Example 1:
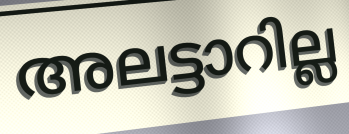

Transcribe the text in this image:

അലട്ടാറില്ല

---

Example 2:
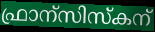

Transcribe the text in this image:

ഫ്രാന്സിസ്കന്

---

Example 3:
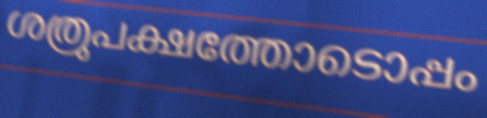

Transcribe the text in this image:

ശത്രുപക്ഷത്തോടൊപ്പം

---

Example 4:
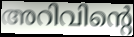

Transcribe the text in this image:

അറിവിന്റെ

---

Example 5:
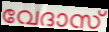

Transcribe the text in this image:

വേദാസ്